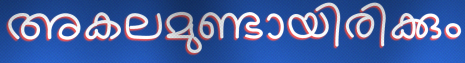
അകലമുണ്ടായിരിക്കും